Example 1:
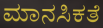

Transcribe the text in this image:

ಮಾನಸಿಕತೆ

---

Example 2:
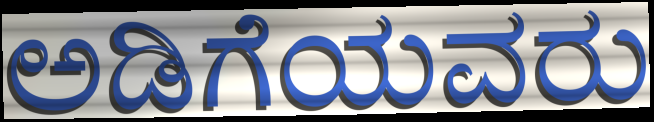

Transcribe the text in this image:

ಅಡಿಗೆಯವರು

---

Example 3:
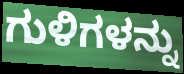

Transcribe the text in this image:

ಗುಳಿಗಳನ್ನು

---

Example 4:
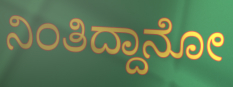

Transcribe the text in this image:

ನಿಂತಿದ್ದಾನೋ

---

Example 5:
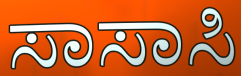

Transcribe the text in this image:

ಸಾಸಾಸಿ